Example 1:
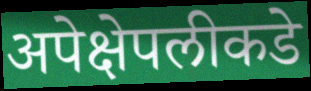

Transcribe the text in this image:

अपेक्षेपलीकडे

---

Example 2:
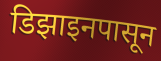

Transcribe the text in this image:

डिझाइनपासून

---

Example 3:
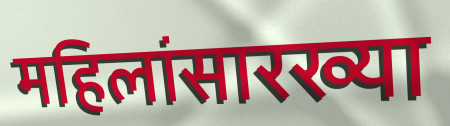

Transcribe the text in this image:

महिलांसारख्या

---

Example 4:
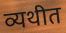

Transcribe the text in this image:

व्यथीत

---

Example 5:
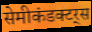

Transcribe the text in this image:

सेमीकंडक्टर्स